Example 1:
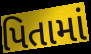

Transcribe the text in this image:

પિતામાં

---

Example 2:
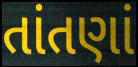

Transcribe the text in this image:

તાંતણાં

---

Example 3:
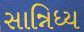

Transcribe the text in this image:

સાન્નિધ્ય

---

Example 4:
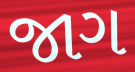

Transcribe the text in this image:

જાગ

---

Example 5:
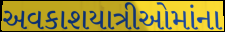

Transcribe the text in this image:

અવકાશયાત્રીઓમાંના